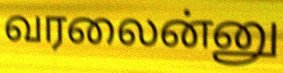
வரலைன்னு